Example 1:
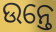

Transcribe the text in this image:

ଉନ୍ତେ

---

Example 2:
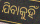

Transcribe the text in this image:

ଯିବାକୁହିଁ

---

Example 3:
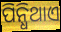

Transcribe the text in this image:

ପିନ୍ଧିଥାଏ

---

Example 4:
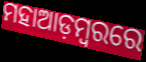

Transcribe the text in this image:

ମହାଆଡ଼ମ୍ୱରରେ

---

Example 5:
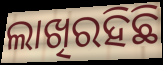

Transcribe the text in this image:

ଲାଖିରହିଛି